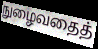
நுழைவதைத்